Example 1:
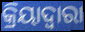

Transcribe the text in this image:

କ୍ରିୟାଦ୍ଵାରା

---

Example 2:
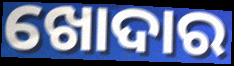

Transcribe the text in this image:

ଖୋଦାର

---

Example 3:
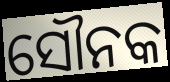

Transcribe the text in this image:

ସୌନକ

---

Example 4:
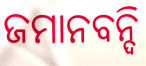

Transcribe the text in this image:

ଜମାନବନ୍ଦି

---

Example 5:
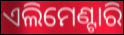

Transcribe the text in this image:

ଏଲିମେଣ୍ଟାରି